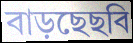
বাড়ছেছবি